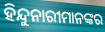
ହିନ୍ଦୁନାରୀମାନଙ୍କର